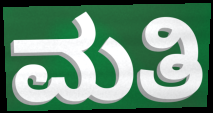
ಮತಿ